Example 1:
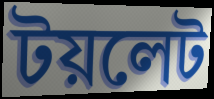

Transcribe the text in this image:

টয়লেট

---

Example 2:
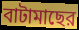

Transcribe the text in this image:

বাটামাছের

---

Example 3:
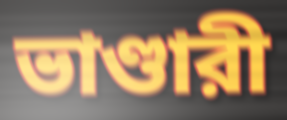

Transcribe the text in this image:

ভাণ্ডারী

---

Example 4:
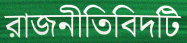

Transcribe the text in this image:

রাজনীতিবিদটি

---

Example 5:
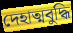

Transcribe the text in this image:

দেহাত্মবুদ্ধি